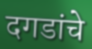
दगडांचे